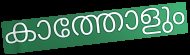
കാത്തോളും